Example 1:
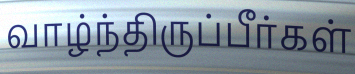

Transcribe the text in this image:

வாழ்ந்திருப்பீர்கள்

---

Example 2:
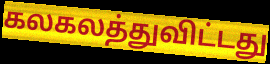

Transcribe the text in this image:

கலகலத்துவிட்டது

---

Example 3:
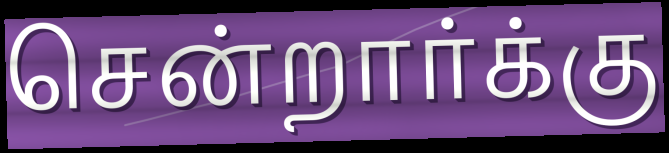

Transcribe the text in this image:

சென்றார்க்கு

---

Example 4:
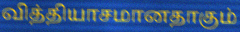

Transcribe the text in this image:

வித்தியாசமானதாகும்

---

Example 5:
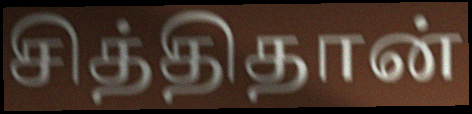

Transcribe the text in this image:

சித்திதான்